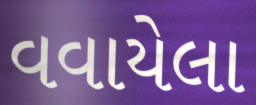
વવાયેલા